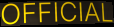
OFFICIAL